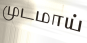
முடமாய்